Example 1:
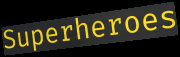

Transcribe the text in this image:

Superheroes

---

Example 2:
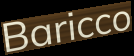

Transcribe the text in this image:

Baricco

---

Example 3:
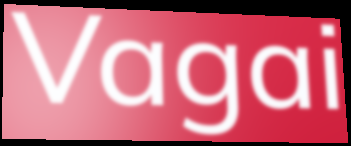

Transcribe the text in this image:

Vagai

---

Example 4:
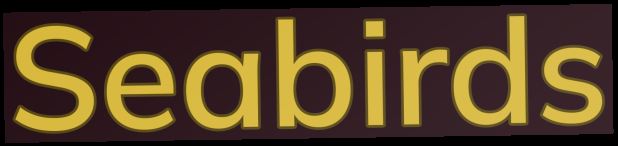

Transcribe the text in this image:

Seabirds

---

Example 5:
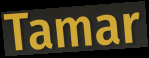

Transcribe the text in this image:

Tamar